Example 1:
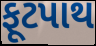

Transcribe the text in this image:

ફૂટપાથ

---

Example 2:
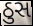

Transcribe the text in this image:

ઠુસ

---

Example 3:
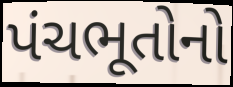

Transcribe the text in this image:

પંચભૂતોનો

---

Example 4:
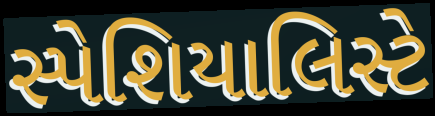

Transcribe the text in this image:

સ્પેશિયાલિસ્ટે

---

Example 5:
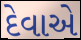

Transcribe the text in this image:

દેવાએ